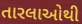
તારલાઓથી